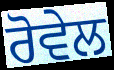
ਰੋਵੇਲ